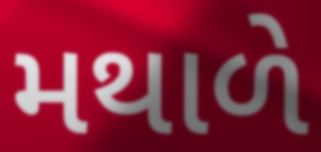
મથાળે